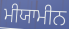
ਮੀਯਾਮੀਨ